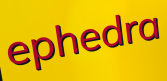
ephedra